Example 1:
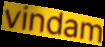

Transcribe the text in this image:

vindam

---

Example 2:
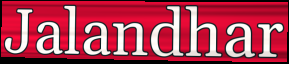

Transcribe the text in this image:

Jalandhar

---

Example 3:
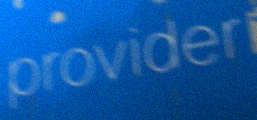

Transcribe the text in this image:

provider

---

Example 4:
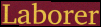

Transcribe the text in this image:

Laborer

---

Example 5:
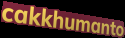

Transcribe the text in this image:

cakkhumanto